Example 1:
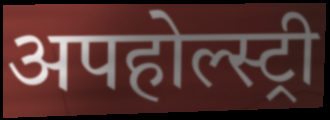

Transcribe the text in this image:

अपहोल्स्ट्री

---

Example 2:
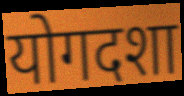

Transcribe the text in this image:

योगदशा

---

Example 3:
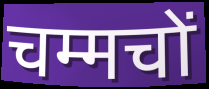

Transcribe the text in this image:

चम्मचों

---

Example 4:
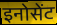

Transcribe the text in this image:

इनोसेंट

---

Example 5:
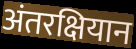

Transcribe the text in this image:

अंतरक्षियान